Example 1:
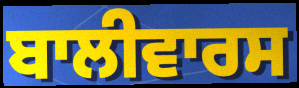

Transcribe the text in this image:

ਬਾਲੀਵਾਰਸ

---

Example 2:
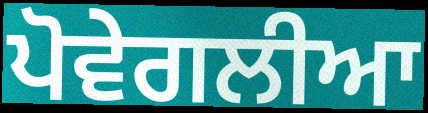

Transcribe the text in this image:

ਪੋਵੇਗਲੀਆ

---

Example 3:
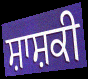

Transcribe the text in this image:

ਸ਼ਾਸ਼ਕੀ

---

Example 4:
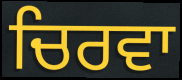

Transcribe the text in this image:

ਚਿਰਵਾ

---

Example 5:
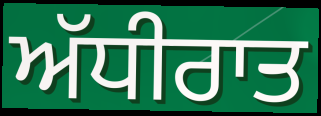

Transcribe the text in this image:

ਅੱਧੀਰਾਤ